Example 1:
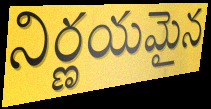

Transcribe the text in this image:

నిర్ణయమైన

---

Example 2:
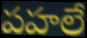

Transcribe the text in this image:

పహలే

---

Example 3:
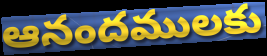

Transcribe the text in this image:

ఆనందములకు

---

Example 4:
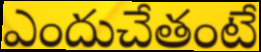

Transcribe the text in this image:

ఎందుచేతంటే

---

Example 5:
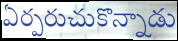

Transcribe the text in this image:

ఏర్పరుచుకొన్నాడు